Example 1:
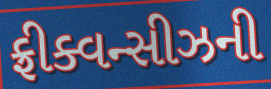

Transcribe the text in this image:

ફ્રીક્વન્સીઝની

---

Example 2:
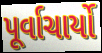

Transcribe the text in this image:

પૂર્વાચાર્યો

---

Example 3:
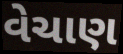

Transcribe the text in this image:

વેચાણ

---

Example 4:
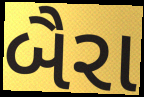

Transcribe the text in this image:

બૈરા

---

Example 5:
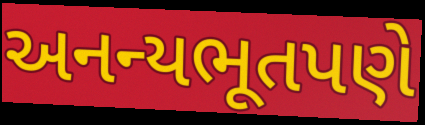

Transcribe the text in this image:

અનન્યભૂતપણે